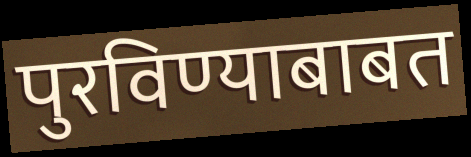
पुरविण्याबाबत